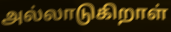
அல்லாடுகிறாள்